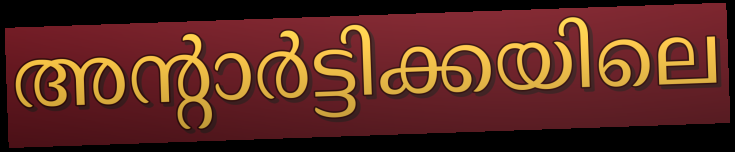
അന്റാർട്ടിക്കയിലെ